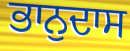
ਭਾਨੁਦਾਸ